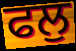
ਫਲੁ